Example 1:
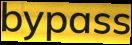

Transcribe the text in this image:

bypass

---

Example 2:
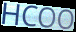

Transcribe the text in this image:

HCOO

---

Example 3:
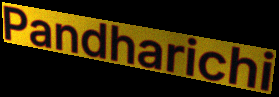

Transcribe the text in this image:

Pandharichi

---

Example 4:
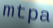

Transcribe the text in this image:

mtpa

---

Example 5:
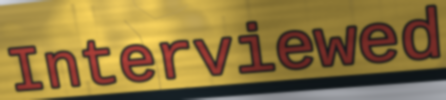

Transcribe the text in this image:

Interviewed